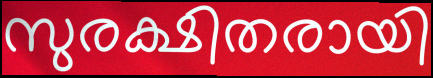
സുരക്ഷിതരായി